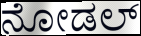
ನೋಡಲ್